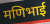
मणिभाई